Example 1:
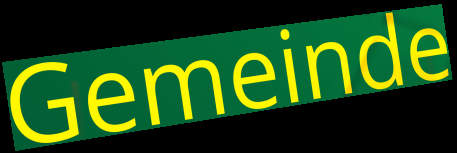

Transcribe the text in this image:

Gemeinde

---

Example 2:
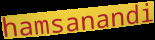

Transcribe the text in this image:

hamsanandi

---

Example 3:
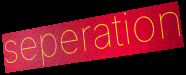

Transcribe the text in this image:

seperation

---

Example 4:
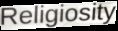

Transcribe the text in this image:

Religiosity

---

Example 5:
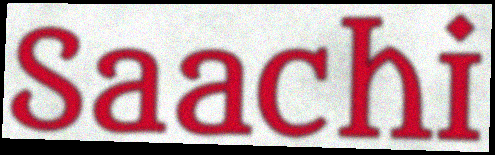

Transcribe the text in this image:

Saachi